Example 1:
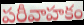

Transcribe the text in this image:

పరీవాహకం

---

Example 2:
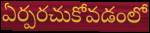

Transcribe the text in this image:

ఏర్పరచుకోవడంలో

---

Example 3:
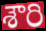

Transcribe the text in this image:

శౌరి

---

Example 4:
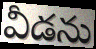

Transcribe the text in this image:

వీడను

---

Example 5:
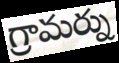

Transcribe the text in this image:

గ్రామర్ను